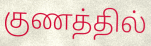
குணத்தில்